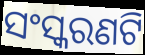
ସଂସ୍କରଣଟି